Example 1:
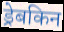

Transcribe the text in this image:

ड्रेबकिन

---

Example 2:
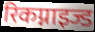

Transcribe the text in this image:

रिकग्नाइज्ड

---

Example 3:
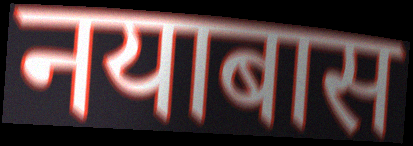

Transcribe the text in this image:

नयाबास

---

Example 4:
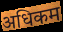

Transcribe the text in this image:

अधिकम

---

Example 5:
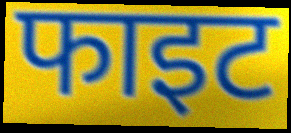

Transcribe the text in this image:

फाइट